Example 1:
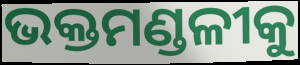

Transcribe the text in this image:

ଭକ୍ତମଣ୍ଡଳୀକୁ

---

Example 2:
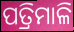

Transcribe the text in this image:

ପତ୍ରିମାଳି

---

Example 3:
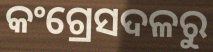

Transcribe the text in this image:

କଂଗ୍ରେସଦଳରୁ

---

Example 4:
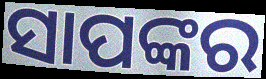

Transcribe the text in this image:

ସାପଙ୍କର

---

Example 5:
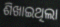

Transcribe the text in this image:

ଶିଖାଇଥିଲା